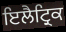
ਇਲੈਟ੍ਰਿਕ